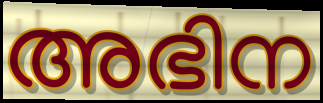
അഭിന